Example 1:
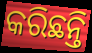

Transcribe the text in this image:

କରିଛନ୍ତି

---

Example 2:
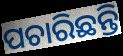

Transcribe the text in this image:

ପଚାରିଛନ୍ତି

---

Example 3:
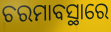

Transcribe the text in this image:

ଚରମାବସ୍ଥାରେ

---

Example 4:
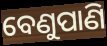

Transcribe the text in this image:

ବେଣୁପାଣି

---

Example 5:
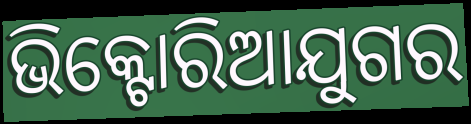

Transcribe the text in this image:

ଭିକ୍ଟୋରିଆଯୁଗର